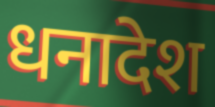
धनादेश